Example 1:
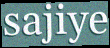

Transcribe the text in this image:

sajiye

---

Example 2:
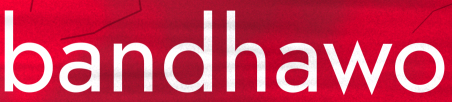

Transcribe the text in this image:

bandhawo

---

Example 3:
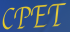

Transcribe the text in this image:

CPET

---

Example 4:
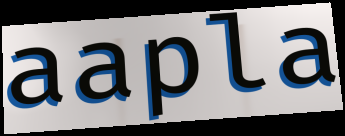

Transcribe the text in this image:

aapla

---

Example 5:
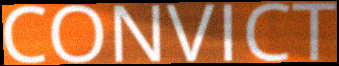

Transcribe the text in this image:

CONVICT